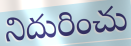
నిదురించు